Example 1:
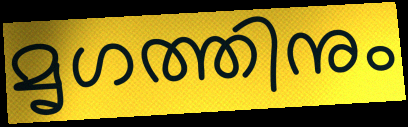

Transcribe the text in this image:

മൃഗത്തിനും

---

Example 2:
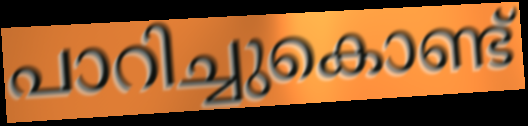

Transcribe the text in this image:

പാറിച്ചുകൊണ്ട്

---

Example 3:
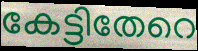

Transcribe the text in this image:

കേട്ടിതേറെ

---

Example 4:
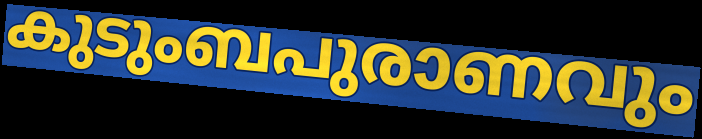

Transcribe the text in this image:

കുടുംബപുരാണവും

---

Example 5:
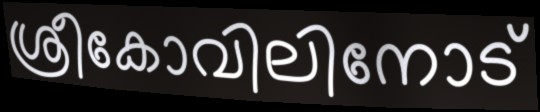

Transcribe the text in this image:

ശ്രീകോവിലിനോട്